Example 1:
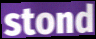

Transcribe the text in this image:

stond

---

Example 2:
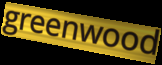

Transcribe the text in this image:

greenwood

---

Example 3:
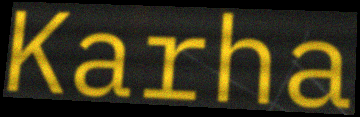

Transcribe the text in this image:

Karha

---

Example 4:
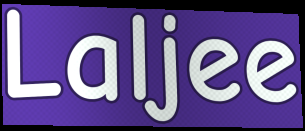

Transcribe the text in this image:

Laljee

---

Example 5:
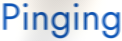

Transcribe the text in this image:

Pinging